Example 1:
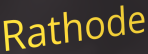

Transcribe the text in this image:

Rathode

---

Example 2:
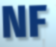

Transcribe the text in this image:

NF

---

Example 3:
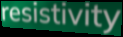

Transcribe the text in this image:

resistivity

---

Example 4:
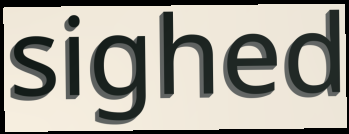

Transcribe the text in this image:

sighed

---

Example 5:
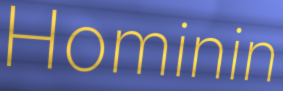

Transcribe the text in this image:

Hominin